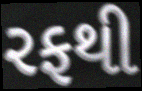
રફથી